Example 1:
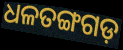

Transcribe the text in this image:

ଧଳତଙ୍ଗଗଡ଼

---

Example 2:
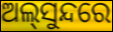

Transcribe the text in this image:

ଅଲ୍‌ସୁନ୍ଦରେ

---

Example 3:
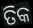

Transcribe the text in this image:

ତିକ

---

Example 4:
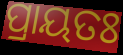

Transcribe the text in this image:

ପ୍ରାୟତଃ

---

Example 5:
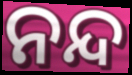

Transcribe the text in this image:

ନନ୍ଦ